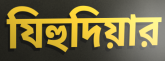
যিহুদিয়ার